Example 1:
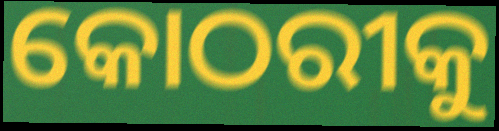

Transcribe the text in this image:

କୋଠରୀକୁ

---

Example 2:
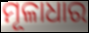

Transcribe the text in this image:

ମୂଳାଧାର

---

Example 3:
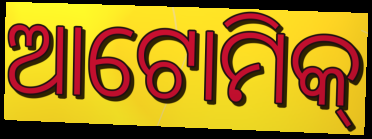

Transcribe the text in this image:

ଆଟୋମିକ୍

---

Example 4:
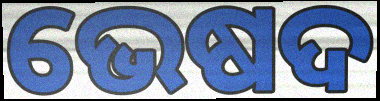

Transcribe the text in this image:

ଭେଷଦ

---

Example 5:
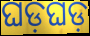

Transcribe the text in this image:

ଘଡ଼ଘଡ଼